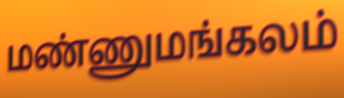
மண்ணுமங்கலம்